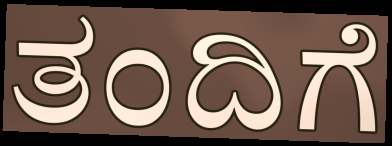
ತಂದಿಗೆ